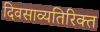
दिवसाव्यतिरिक्त